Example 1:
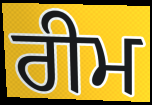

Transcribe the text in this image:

ਰੀਮ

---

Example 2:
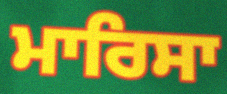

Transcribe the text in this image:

ਮਾਰਿਸਾ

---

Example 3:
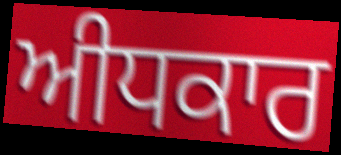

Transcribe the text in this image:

ਅੀਧਕਾਰ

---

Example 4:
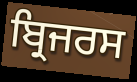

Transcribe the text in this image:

ਬ੍ਰਿਜਰਸ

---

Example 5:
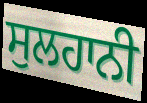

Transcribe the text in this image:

ਸੁਲਹਾਨੀ